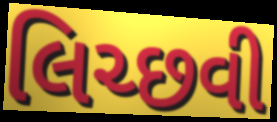
લિચ્છવી